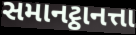
સમાનટ્ઠાનત્તા